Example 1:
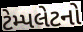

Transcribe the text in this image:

ટેમ્પલેટનો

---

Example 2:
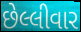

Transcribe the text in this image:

છેલ્લીવાર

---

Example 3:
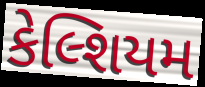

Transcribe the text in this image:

કેલ્શિયમ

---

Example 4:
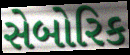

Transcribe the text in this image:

સેબોરિક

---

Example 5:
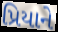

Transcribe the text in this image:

પ્રિયાને